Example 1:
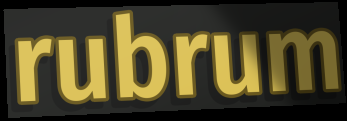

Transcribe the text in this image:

rubrum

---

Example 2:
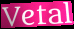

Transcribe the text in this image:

Vetal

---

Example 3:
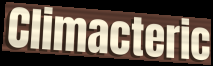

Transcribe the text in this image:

Climacteric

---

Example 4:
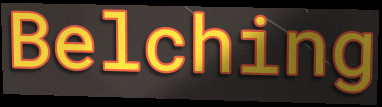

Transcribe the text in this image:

Belching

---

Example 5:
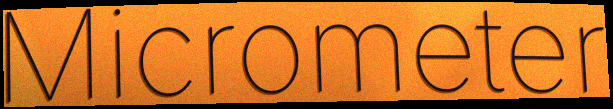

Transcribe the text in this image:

Micrometer